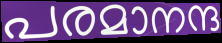
പരമാനന്ദ